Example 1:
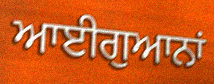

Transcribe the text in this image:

ਆਈਗੁਆਨਾਂ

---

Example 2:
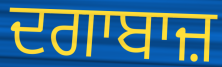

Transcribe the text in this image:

ਦਗਾਬਾਜ਼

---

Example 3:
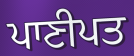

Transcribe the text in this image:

ਪਾਣੀਪਤ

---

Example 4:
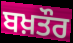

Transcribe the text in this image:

ਬਖ਼ਤੌਰ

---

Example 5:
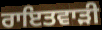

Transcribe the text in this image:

ਰਾਇਤਵਾੜੀ